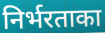
निर्भरताका